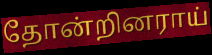
தோன்றினராய்